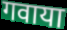
गवाया